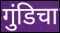
गुंडिचा